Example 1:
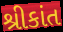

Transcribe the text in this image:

શ્રીકાંત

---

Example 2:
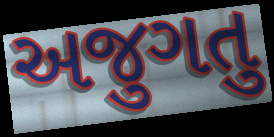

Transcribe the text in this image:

અજુગતુ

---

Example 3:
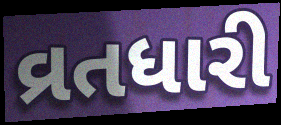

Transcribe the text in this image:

વ્રતધારી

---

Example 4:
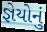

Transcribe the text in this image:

જ્ઞેયોનું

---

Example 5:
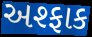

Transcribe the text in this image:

અશ્ફાક